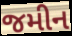
જમીન